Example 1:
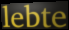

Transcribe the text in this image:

lebte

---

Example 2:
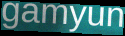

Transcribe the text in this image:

gamyun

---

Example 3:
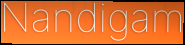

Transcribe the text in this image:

Nandigam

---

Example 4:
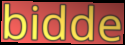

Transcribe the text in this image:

bidde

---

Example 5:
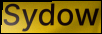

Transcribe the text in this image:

Sydow